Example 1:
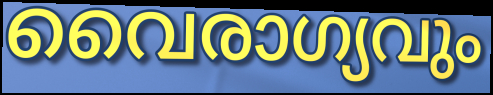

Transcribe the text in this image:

വൈരാഗ്യവും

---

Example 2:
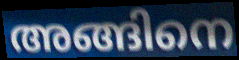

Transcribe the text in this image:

അങ്ങിനെ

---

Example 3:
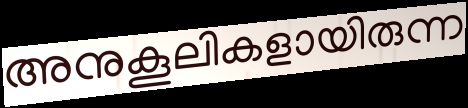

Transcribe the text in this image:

അനുകൂലികളായിരുന്ന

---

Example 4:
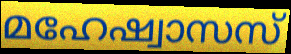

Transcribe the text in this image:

മഹേഷ്വാസസ്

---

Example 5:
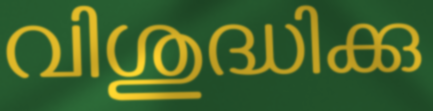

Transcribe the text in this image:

വിശുദ്ധിക്കു